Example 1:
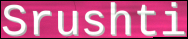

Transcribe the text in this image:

Srushti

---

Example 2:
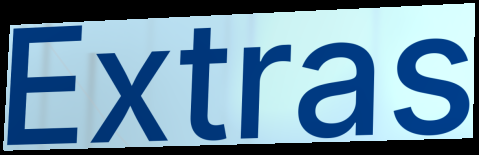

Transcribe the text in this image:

Extras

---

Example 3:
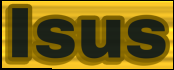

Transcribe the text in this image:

Isus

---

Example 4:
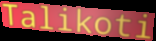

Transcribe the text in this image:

Talikoti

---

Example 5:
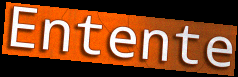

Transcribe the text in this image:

Entente